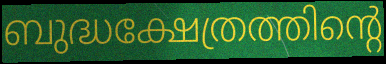
ബുദ്ധക്ഷേത്രത്തിന്റെ